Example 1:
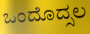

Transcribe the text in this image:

ಒಂದೊದ್ಸಲ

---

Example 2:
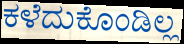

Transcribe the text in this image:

ಕಳೆದುಕೊಂಡಿಲ್ಲ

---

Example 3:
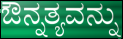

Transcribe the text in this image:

ಔನ್ನತ್ಯವನ್ನು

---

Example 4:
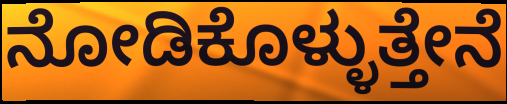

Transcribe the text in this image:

ನೋಡಿಕೊಳ್ಳುತ್ತೇನೆ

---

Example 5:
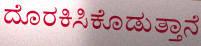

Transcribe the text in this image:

ದೊರಕಿಸಿಕೊಡುತ್ತಾನೆ